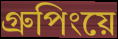
গ্রুপিংয়ে